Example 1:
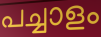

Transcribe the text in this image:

പച്ചാളം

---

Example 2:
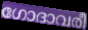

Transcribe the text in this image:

ഗോദാവരീ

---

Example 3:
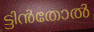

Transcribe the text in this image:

ട്ടിൻതോൽ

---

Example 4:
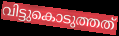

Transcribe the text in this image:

വിട്ടുകൊടുത്തത്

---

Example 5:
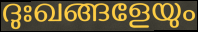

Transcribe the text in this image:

ദുഃഖങ്ങളേയും